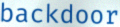
backdoor